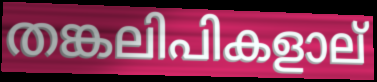
തങ്കലിപികളാല്